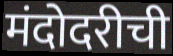
मंदोदरीची